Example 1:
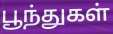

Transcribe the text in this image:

பூந்துகள்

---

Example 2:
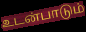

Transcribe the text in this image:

உடன்பாடும்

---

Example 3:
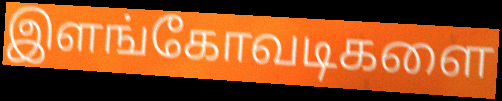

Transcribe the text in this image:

இளங்கோவடிகளை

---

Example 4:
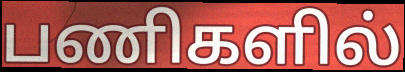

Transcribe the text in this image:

பணிகளில்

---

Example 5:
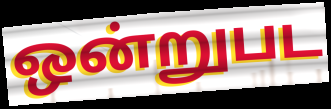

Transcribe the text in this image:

ஒன்றுபட